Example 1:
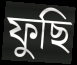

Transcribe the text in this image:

ফুছি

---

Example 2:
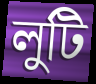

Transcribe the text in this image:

লুটি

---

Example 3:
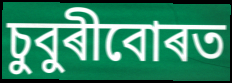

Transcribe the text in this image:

চুবুৰীবোৰত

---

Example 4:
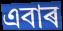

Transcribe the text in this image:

এবাৰ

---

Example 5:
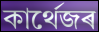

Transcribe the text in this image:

কাৰ্থেজৰ